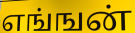
எங்ஙன்